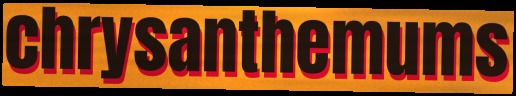
chrysanthemums